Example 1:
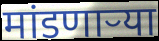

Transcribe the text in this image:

मांडणाऱ्या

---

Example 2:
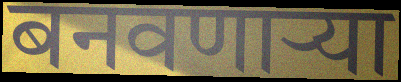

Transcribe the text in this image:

बनवणाऱ्या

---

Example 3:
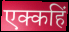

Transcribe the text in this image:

एक्कहिं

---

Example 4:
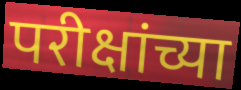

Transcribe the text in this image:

परीक्षांच्या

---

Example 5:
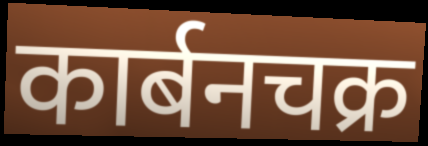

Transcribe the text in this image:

कार्बनचक्र